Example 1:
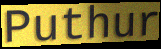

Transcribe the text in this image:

Puthur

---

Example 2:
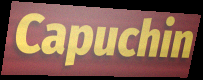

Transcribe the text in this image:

Capuchin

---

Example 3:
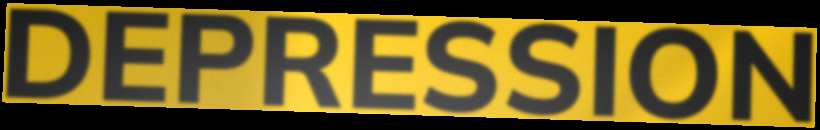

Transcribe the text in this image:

DEPRESSION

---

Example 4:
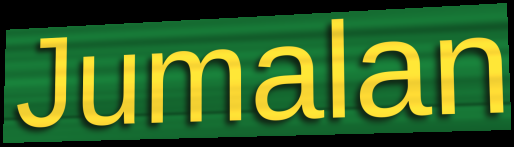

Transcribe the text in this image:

Jumalan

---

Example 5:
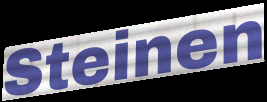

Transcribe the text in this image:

Steinen